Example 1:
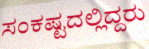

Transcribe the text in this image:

ಸಂಕಷ್ಟದಲ್ಲಿದ್ದರು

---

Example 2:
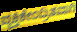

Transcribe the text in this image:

ವ್ಯಕ್ತಿಕೇಂದ್ರಿತವಾಗಿ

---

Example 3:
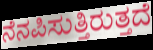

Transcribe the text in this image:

ನೆನಪಿಸುತ್ತಿರುತ್ತದೆ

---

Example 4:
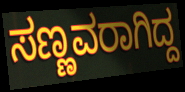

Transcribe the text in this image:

ಸಣ್ಣವರಾಗಿದ್ದ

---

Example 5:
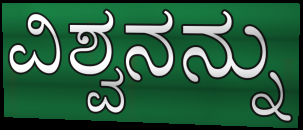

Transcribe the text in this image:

ವಿಶ್ವನನ್ನು